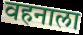
वहनाला